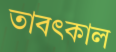
তাবৎকাল